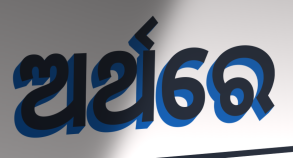
ଅର୍ଥରେ